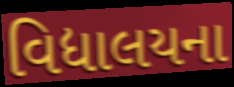
વિદ્યાલયના